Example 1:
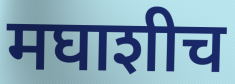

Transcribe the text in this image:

मघाशीच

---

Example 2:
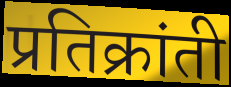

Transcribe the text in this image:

प्रतिक्रांती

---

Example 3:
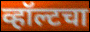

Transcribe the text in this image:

व्हॉल्टचा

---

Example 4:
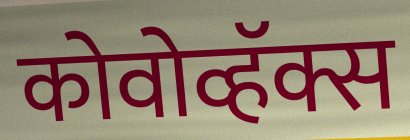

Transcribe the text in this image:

कोवोव्हॅक्स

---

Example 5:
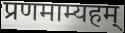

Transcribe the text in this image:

प्रणमाम्यहम्